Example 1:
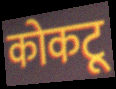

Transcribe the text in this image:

कोकटू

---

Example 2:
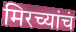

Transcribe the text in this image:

मिरच्यांचं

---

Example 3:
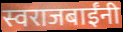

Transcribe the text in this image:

स्वराजबाईंनी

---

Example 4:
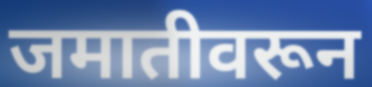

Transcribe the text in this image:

जमातीवरून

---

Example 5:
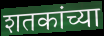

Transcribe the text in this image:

शतकांच्या